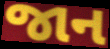
જાન